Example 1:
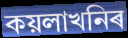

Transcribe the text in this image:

কয়লাখনিৰ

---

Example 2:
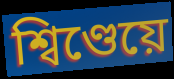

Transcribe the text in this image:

শ্বিণ্ডেয়ে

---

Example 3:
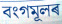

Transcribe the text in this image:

বংগমূলৰ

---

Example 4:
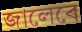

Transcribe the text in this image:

জালেৰে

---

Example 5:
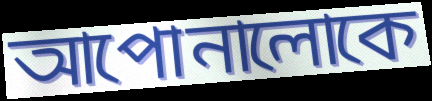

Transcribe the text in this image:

আপোনালোকে